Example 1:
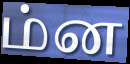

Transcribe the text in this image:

ம்ன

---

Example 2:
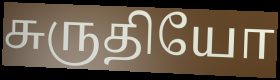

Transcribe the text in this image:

சுருதியோ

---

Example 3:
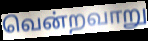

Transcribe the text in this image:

வென்றவாறு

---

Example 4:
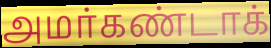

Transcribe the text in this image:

அமர்கண்டாக்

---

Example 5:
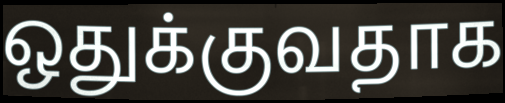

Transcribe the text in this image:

ஒதுக்குவதாக